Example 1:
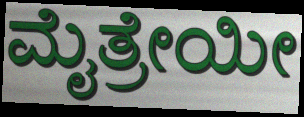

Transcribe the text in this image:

ಮೈತ್ರೇಯೀ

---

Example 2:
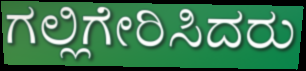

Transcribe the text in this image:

ಗಲ್ಲಿಗೇರಿಸಿದರು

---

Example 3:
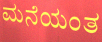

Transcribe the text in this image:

ಮನೆಯಂತ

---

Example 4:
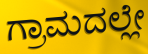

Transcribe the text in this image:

ಗ್ರಾಮದಲ್ಲೇ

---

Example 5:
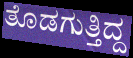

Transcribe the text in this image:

ತೊಡಗುತ್ತಿದ್ದ